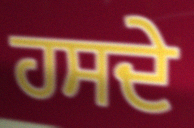
ਹਸਦੇ